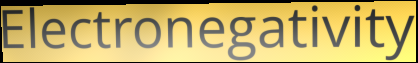
Electronegativity